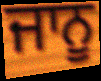
ਜਾਨੂ